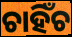
ଚାହିଁଚ